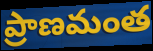
ప్రాణమంత